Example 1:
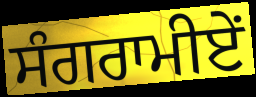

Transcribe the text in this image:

ਸੰਗਰਾਮੀਏਂ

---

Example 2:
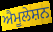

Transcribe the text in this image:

ਐਮੂਲੇਸ਼ਨ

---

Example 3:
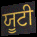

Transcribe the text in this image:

ਯੂਟੀ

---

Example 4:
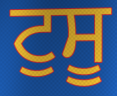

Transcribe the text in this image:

ਟੁਸੂ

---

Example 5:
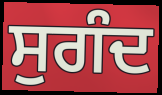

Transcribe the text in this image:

ਸੁਗੰਦ